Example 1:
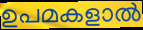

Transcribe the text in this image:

ഉപമകളാൽ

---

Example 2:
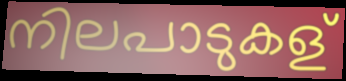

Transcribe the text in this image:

നിലപാടുകള്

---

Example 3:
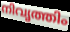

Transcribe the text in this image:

നിവൃത്തിം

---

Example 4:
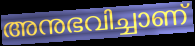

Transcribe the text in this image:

അനുഭവിച്ചാണ്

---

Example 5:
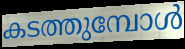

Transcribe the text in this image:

കടത്തുമ്പോൾ